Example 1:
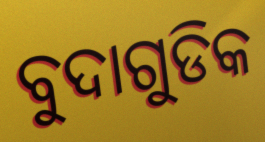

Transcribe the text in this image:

ବୁଦାଗୁଡିକ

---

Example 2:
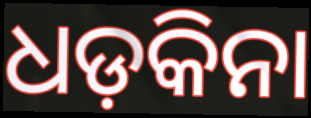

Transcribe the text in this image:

ଧଡ଼କିନା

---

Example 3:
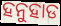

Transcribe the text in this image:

ହନୁହାଡ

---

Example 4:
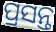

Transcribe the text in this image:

ପ୍ରସନ୍ତ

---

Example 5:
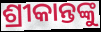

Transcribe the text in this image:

ଶ୍ରୀକାନ୍ତଙ୍କୁ